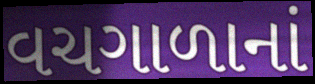
વચગાળાનાં